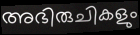
അഭിരുചികളും